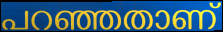
പറഞ്ഞതാണ്